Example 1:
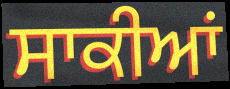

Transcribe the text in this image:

ਸਾਕੀਆਂ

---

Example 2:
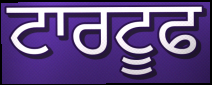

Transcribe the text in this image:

ਟਾਰਟੂਫ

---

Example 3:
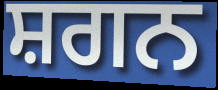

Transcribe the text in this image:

ਸ਼ਗਨ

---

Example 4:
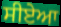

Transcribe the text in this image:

ਸੀਏਆ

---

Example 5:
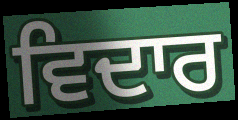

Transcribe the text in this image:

ਵਿਦਾਰ